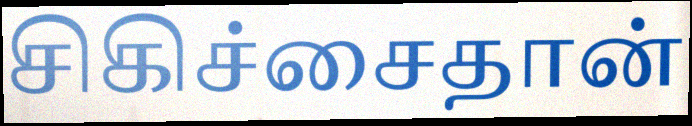
சிகிச்சைதான்